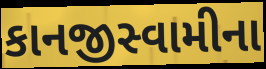
કાનજીસ્વામીના